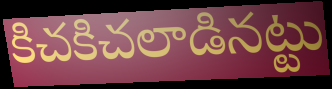
కిచకిచలాడినట్టు